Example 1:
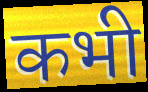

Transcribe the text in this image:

कभी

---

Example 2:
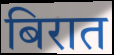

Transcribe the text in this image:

बिरात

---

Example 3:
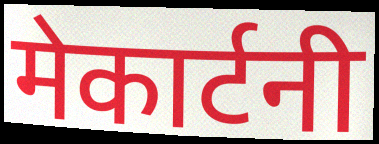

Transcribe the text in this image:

मेकार्टनी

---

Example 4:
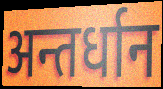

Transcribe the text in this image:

अन्तर्धान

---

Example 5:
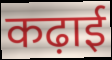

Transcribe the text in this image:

कढ़ाई